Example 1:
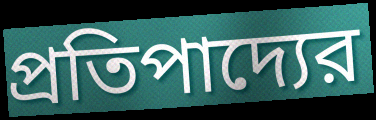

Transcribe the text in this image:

প্রতিপাদ্যের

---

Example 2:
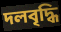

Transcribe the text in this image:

দলবৃদ্ধি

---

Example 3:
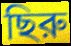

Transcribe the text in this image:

ছিরু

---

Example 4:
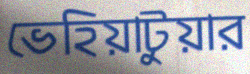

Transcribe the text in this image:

ভেহিয়াটুয়ার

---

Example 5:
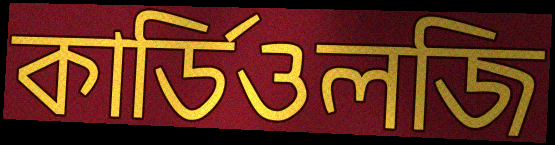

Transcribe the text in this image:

কার্ডিওলজি